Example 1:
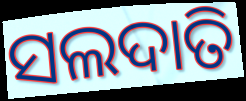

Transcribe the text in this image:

ସଲଦାତି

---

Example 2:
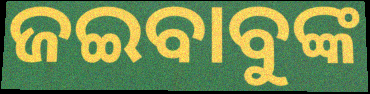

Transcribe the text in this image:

ଜଇବାବୁଙ୍କ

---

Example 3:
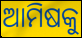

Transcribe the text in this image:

ଆମିଷକୁ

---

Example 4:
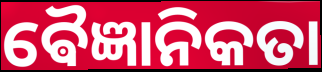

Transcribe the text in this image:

ଵୈଜ୍ଞାନିକତା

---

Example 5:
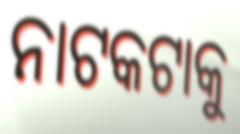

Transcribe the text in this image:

ନାଟକଟାକୁ